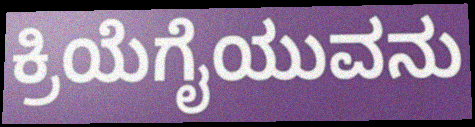
ಕ್ರಿಯೆಗೈಯುವನು